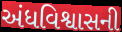
અંધવિશ્વાસની